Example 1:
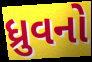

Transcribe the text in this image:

ધ્રુવનો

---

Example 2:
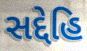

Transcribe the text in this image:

સદ્દેહિ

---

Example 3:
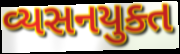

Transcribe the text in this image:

વ્યસનયુક્ત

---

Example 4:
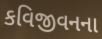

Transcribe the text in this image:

કવિજીવનના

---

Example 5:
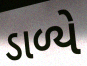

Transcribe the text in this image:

ડાળ્યે